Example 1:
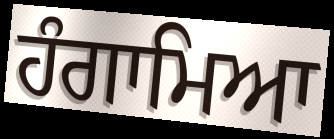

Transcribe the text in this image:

ਹੰਗਾਮਿਆ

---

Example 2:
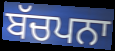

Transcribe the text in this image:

ਬੱਚਪਨਾ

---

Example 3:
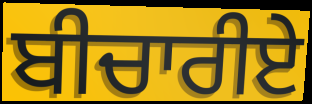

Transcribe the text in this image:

ਬੀਚਾਰੀਏ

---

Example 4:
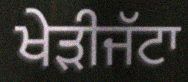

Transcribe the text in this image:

ਖੇੜੀਜੱਟਾ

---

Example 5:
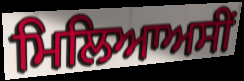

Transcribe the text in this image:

ਮਿਲਿਆਅਸੀਂ